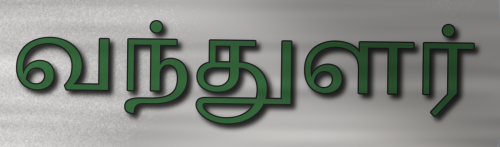
வந்துளர்